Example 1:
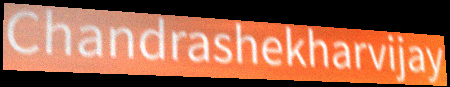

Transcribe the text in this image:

Chandrashekharvijay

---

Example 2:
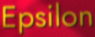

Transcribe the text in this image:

Epsilon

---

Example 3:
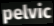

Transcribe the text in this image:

pelvic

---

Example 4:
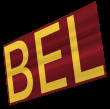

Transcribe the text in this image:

BEL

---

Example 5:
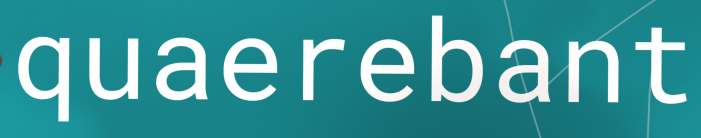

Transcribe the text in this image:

quaerebant